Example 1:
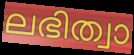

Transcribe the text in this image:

ലഭിത്വാ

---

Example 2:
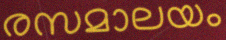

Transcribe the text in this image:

രസമാലയം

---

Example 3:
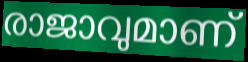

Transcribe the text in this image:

രാജാവുമാണ്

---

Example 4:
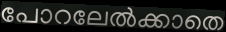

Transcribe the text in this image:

പോറലേൽക്കാതെ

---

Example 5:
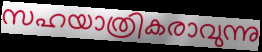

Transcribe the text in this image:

സഹയാത്രികരാവുന്നു